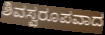
ಶಿವಸ್ವರೂಪವಾದ